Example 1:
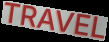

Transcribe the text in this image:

TRAVEL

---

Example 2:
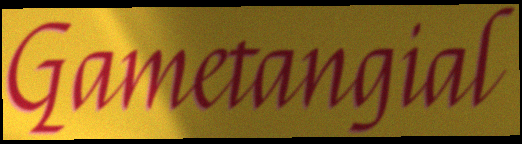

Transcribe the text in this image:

Gametangial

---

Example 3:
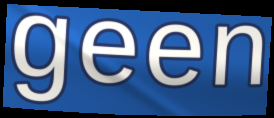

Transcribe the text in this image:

geen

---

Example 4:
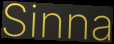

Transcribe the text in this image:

Sinna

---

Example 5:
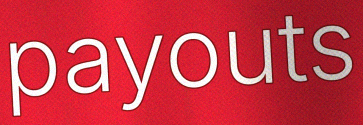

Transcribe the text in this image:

payouts